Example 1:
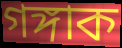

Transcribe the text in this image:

গঙ্গাক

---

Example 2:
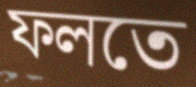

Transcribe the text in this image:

ফলতে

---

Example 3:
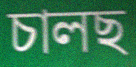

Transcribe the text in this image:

চালছ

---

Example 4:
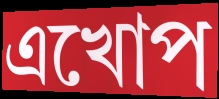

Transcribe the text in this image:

এখোপ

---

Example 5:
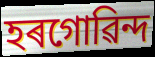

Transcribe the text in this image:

হৰগোৱিন্দ